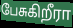
பேசுகிறீரா